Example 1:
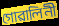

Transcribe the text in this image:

গোৱালিনী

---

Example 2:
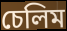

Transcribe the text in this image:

চেলিম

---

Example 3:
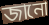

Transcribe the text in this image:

জানো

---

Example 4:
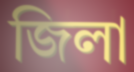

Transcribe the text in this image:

জিলা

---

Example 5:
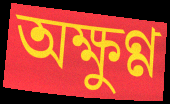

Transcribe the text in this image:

অক্ষুণ্ণ